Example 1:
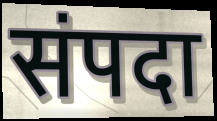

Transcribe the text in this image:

संपदा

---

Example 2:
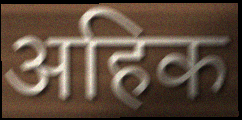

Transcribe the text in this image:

अहिक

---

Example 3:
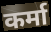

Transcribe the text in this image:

कर्मा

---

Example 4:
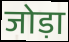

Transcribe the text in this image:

जोड़ा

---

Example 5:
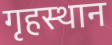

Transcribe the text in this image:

गृहस्थान